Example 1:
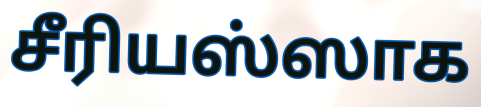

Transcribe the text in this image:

சீரியஸ்ஸாக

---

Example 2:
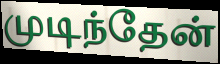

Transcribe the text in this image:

முடிந்தேன்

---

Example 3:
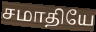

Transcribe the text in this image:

சமாதியே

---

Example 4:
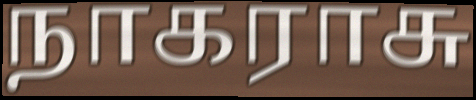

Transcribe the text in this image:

நாகராசு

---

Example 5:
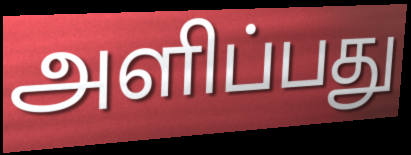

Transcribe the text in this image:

அளிப்பது